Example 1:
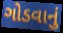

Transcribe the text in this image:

ગોડવાનું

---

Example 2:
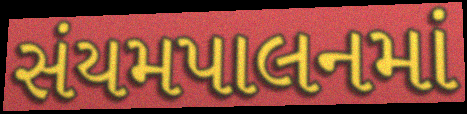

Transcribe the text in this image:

સંયમપાલનમાં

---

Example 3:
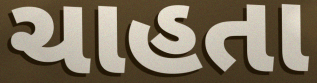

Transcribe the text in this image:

ચાહતા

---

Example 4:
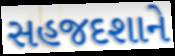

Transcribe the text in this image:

સહજદશાને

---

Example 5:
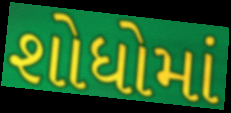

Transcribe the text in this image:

શોધોમાં